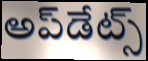
అప్‌డేట్స్